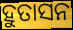
ହୁତାସନ